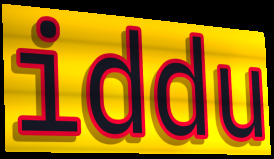
iddu